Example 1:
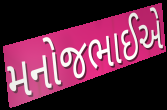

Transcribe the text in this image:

મનોજભાઈએ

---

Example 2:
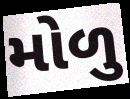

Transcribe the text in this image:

મોળુ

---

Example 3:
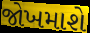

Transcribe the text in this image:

જોખમાશે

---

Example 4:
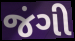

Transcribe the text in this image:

જંગી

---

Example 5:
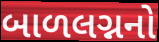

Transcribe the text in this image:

બાળલગ્નનો